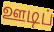
ஊடிப்